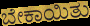
ಬೇಕಾಯಿತು